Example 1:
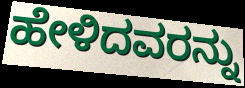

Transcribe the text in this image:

ಹೇಳಿದವರನ್ನು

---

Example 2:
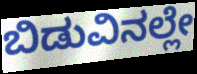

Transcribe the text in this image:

ಬಿಡುವಿನಲ್ಲೇ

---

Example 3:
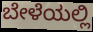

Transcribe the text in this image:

ಬೇಳೆಯಲ್ಲಿ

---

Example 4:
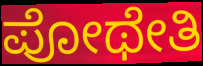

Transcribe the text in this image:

ಪೋಥೇತಿ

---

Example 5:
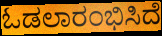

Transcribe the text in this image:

ಓಡಲಾರಂಭಿಸಿದೆ